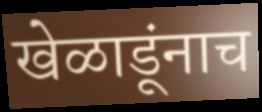
खेळाडूंनाच